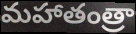
మహాతంత్రా